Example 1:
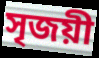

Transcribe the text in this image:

সৃজয়ী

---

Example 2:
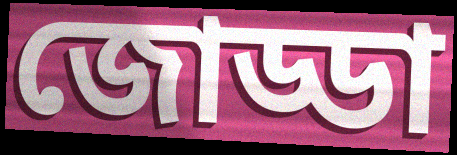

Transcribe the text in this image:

জোড্ডা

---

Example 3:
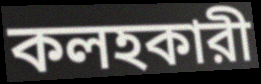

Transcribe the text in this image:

কলহকারী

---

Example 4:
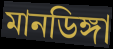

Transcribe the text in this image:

মানডিঙ্গা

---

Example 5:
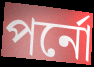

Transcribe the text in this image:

পর্নো